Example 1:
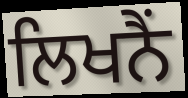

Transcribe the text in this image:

ਲਿਖਨੈਂ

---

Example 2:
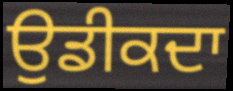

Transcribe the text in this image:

ਉਡੀਕਦਾ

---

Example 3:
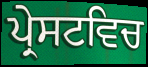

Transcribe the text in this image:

ਪ੍ਰੇਸਟਵਿਚ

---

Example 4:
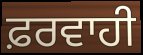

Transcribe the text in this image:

ਫ਼ਰਵਾਹੀ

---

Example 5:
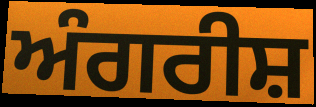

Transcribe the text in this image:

ਅੰਗਰੀਸ਼